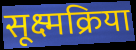
सूक्ष्मक्रिया